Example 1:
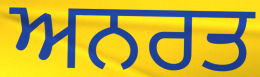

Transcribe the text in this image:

ਅਨਰਤ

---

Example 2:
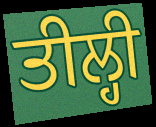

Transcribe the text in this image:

ਤੀਲ੍ਹੀ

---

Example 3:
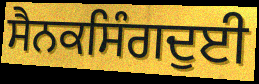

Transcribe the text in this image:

ਸੈਨਕਸਿੰਗਦੁਈ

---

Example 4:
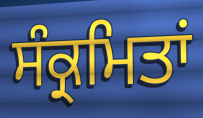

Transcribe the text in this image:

ਸੰਕ੍ਰਮਿਤਾਂ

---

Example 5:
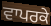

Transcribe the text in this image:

ਵਾਪਰਕੇ